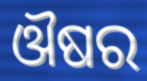
ଔଷର